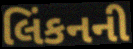
લિંકનની